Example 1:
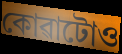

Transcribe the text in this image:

কোৱাটোও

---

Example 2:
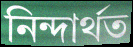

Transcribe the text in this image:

নিন্দাৰ্থত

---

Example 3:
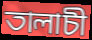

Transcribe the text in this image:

তালাচী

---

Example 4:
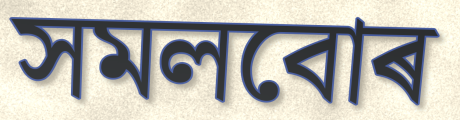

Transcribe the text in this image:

সমলবোৰ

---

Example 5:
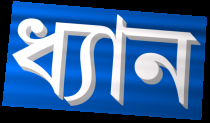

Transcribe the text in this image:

ধ্যান